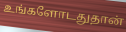
உங்களோடதுதான்